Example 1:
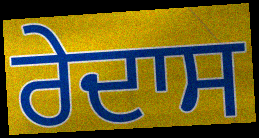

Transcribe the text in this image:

ਰੇਦਾਸ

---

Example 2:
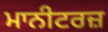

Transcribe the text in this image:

ਮਾਨੀਟਰਜ਼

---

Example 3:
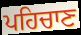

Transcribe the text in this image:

ਪਹਿਚਾਣ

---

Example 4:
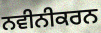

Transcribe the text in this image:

ਨਵੀਨੀਕਰਨ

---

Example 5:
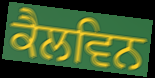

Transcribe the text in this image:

ਕੈਲਵਿਨ